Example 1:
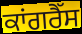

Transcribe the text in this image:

ਕਾਂਗਰੈੱਸ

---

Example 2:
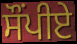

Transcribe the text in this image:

ਸੌਂਪੀਏ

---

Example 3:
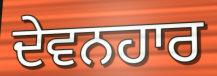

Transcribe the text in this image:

ਦੇਵਨਹਾਰ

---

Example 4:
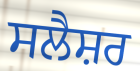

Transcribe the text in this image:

ਸਲੈਸ਼ਰ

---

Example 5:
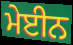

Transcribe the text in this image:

ਮੇਈਨ